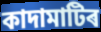
কাদামাটিৰ